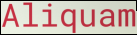
Aliquam